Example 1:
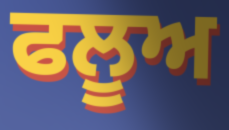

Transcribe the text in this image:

ਫਲੂਅ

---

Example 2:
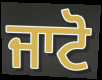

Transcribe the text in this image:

ਜਾਟੋ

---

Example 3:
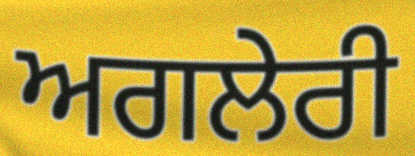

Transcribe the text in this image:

ਅਗਲੇਰੀ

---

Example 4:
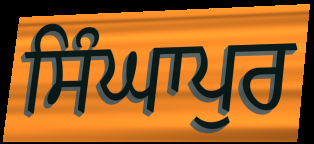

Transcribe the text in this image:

ਸਿੰਘਾਪੁਰ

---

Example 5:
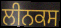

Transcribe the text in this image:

ਲੀਨਕਸ